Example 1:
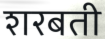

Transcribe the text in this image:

शरबती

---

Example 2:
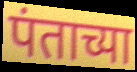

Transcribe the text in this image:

पंताच्या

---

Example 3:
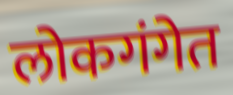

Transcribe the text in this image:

लोकगंगेत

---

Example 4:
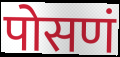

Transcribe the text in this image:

पोसणं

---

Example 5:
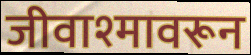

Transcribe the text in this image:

जीवाश्मावरून